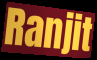
Ranjit